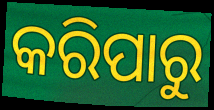
କରିପାରୁ